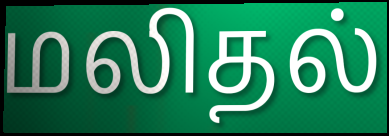
மலிதல்